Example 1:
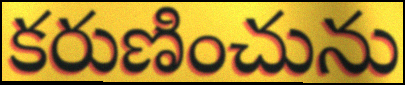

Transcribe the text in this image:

కరుణించును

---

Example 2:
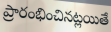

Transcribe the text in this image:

ప్రారంభించినట్లయితే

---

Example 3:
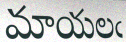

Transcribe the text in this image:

మాయలఁ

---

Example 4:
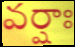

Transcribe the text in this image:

వర్షాః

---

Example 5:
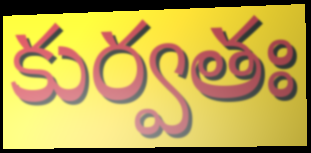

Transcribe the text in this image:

కుర్వతః